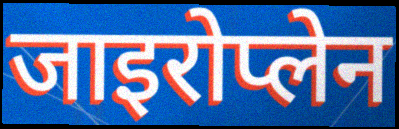
जाइरोप्लेन